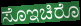
ಸೊಇಚಿರೊ